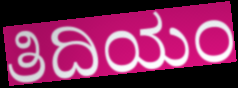
ತಿದಿಯಂ